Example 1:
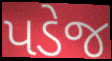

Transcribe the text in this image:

પડેજ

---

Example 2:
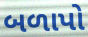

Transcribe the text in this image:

બળાપો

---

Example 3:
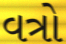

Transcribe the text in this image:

વત્રો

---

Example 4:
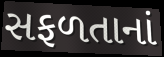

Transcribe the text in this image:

સફળતાનાં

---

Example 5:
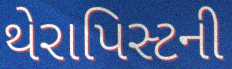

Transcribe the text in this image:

થેરાપિસ્ટની